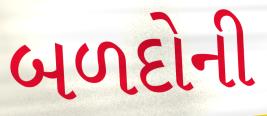
બળદોની